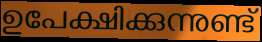
ഉപേക്ഷിക്കുന്നുണ്ട്